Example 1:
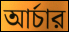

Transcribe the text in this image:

আর্চার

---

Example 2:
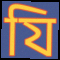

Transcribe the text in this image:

যি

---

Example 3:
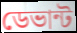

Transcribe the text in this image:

ডেভান্ট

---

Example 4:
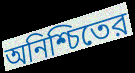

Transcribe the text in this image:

অনিশ্চিতের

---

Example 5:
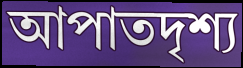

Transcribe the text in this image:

আপাতদৃশ্য